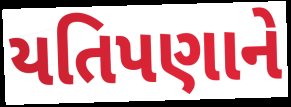
યતિપણાને